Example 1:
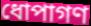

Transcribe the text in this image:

ধোপাগণ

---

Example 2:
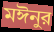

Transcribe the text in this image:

মঈনুর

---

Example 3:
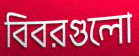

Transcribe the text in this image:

বিবরগুলো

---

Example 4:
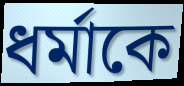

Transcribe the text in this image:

ধর্মাকে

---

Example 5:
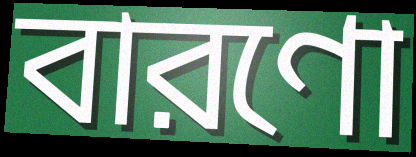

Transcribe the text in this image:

বারণো